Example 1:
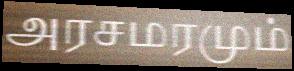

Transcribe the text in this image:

அரசமரமும்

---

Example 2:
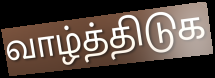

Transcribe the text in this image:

வாழ்த்திடுக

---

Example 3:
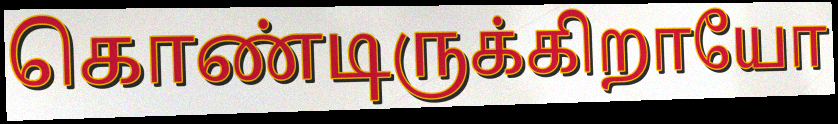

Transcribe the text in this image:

கொண்டிருக்கிறாயோ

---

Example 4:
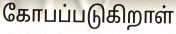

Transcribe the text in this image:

கோபப்படுகிறாள்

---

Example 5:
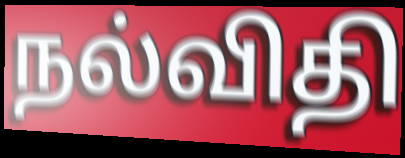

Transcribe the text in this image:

நல்விதி